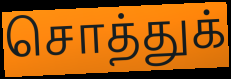
சொத்துக்